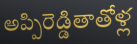
అప్పిరెడ్డితాతోళ్ల